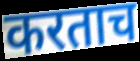
करताच